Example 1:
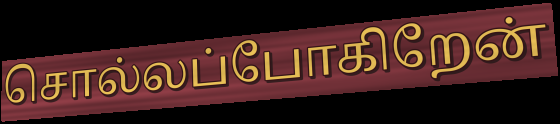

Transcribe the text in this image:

சொல்லப்போகிறேன்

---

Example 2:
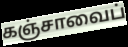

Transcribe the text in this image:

கஞ்சாவைப்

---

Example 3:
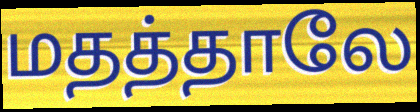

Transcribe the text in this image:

மதத்தாலே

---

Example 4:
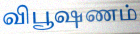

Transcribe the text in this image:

விபூஷணம்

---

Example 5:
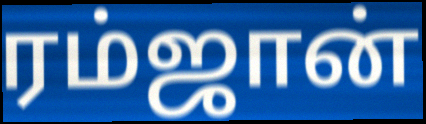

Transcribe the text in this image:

ரம்ஜான்